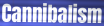
Cannibalism